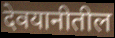
देवयानीतील